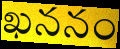
ఖననం